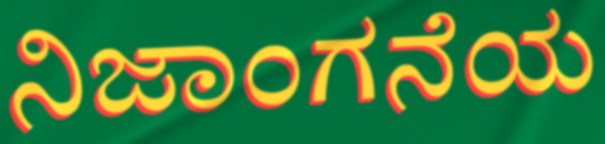
ನಿಜಾಂಗನೆಯ